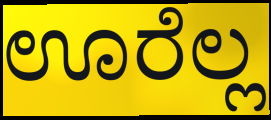
ಊರೆಲ್ಲ